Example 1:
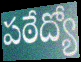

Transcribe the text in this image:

పఠేద్యో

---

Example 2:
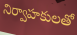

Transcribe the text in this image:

నిర్వాహకులతో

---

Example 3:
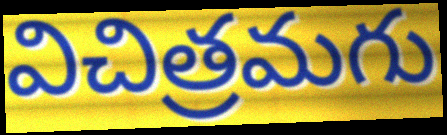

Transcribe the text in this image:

విచిత్రమగు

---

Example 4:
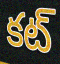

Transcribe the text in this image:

కట్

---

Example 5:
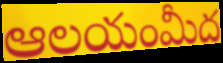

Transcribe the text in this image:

ఆలయంమీద